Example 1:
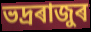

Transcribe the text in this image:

ভদ্ৰৰাজুৰ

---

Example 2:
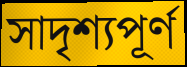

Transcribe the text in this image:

সাদৃশ্যপূৰ্ণ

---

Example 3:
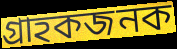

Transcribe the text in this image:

গ্ৰাহকজনক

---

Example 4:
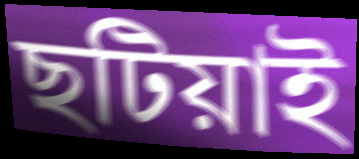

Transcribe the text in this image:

ছটিয়াই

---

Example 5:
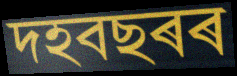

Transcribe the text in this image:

দহবছৰৰ